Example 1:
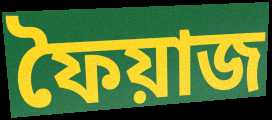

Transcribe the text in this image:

ফৈয়াজ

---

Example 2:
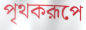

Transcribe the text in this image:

পৃথকরূপে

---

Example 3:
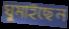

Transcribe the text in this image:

ঘুমাইছেন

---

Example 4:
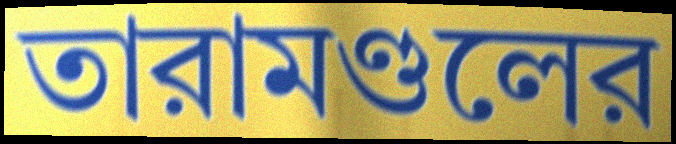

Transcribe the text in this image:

তারামণ্ডলের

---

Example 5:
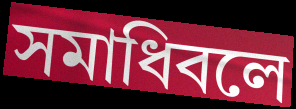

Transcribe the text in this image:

সমাধিবলে